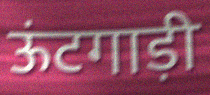
ऊंटगाड़ी